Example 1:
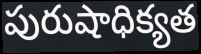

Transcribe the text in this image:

పురుషాధిక్యత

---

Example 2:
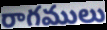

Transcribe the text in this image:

రాగములు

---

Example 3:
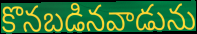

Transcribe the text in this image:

కొనబడినవాడును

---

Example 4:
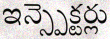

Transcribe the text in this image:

ఇన్స్పెక్టర్లు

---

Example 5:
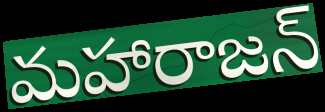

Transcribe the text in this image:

మహారాజన్